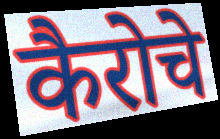
कैरोचे